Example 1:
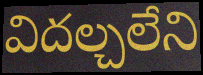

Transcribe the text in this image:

విదల్చలేని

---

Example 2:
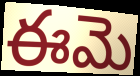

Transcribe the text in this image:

ఈమె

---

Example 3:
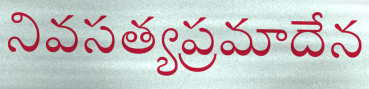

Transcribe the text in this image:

నివసత్యప్రమాదేన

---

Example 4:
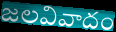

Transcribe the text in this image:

జలవివాదం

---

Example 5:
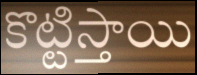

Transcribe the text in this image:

కొట్టిస్తాయి